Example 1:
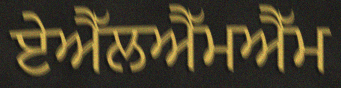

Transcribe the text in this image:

ਏਐੱਲਐੱਮਐੱਮ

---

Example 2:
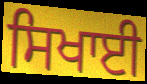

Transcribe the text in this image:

ਸਿਖਾਈ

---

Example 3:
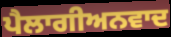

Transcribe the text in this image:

ਪੈਲਾਗੀਅਨਵਾਦ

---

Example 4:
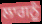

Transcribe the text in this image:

ਲਾਗਨੂੰ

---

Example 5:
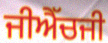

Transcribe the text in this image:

ਜੀਐੱਚਜੀ